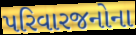
પરિવારજનોના